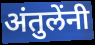
अंतुलेंनी